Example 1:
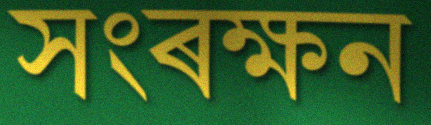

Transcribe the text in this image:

সংৰক্ষন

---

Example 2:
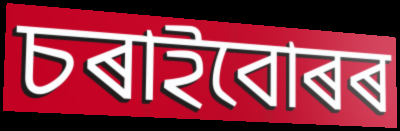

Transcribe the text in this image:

চৰাইবোৰৰ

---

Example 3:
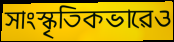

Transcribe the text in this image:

সাংস্কৃতিকভাৱেও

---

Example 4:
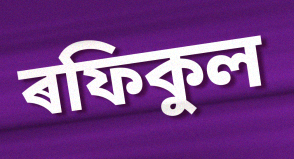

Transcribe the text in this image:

ৰফিকুল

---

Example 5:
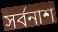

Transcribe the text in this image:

সৰ্বনাশ